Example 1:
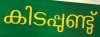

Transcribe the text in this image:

കിടപ്പുണ്ടു്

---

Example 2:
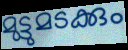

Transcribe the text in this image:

മുട്ടുമടക്കും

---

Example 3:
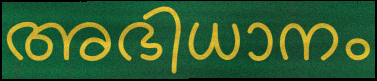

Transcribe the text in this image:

അഭിധാനം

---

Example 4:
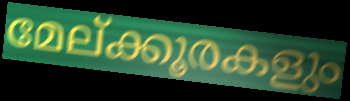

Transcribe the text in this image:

മേല്ക്കൂരകളും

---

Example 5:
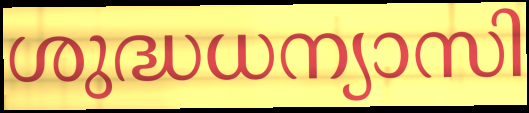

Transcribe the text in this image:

ശുദ്ധധന്യാസി